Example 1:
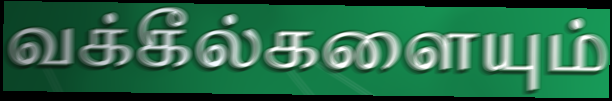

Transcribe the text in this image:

வக்கீல்களையும்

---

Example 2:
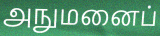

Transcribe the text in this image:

அநுமனைப்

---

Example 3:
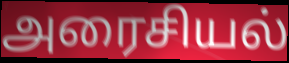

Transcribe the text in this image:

அரைசியல்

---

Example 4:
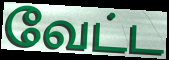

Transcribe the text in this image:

வேட்ட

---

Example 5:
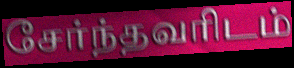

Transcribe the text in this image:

சேர்ந்தவரிடம்